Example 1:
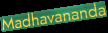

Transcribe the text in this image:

Madhavananda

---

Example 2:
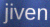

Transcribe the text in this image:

jiven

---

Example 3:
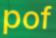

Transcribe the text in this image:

pof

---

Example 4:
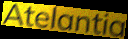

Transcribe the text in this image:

Atelantia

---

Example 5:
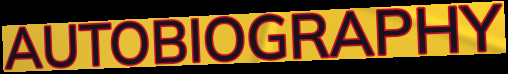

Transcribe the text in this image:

AUTOBIOGRAPHY